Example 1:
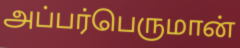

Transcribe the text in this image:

அப்பர்பெருமான்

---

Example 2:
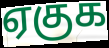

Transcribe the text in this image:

ஏகுக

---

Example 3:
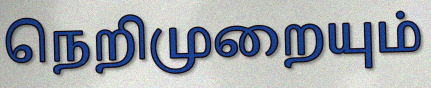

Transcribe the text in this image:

நெறிமுறையும்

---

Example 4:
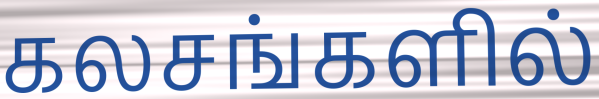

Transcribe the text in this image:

கலசங்களில்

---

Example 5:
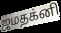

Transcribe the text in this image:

ஜமதக்னி